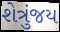
શેત્રુંજય